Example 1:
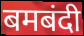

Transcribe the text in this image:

बमबंदी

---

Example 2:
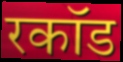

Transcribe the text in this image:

रकॉड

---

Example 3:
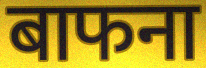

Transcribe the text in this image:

बाफना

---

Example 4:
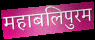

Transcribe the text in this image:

महाबलिपुरम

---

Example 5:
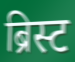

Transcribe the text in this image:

ब्रिस्ट